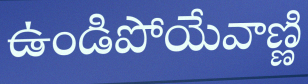
ఉండిపోయేవాణ్ణి